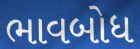
ભાવબોધ